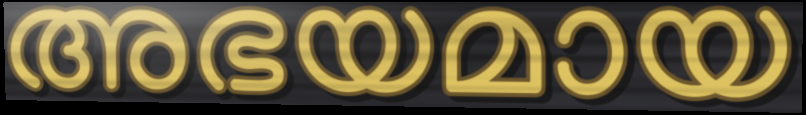
അഭയമായ